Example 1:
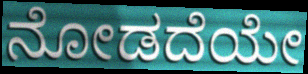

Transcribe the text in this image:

ನೋಡದೆಯೇ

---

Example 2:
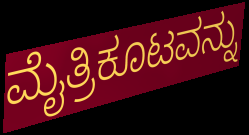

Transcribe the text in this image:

ಮೈತ್ರಿಕೂಟವನ್ನು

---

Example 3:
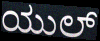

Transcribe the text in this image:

ಯುಲ್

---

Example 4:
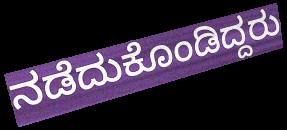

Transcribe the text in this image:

ನಡೆದುಕೊಂಡಿದ್ದರು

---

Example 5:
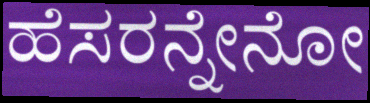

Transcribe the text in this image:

ಹೆಸರನ್ನೇನೋ